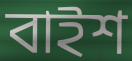
বাইশ